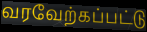
வரவேற்கப்பட்டு